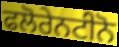
ਫਲੋਰੇਨਟੀਨੋ